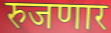
रुजणार